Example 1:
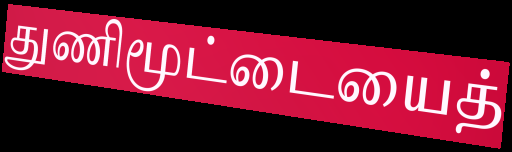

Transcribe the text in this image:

துணிமூட்டையைத்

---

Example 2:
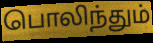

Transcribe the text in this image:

பொலிந்தும்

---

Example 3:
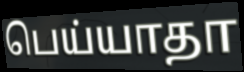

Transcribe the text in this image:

பெய்யாதா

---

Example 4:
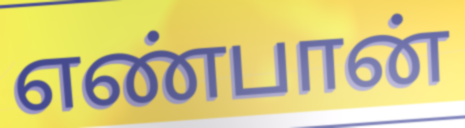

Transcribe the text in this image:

எண்பான்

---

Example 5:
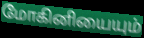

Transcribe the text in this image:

மோகினியையும்